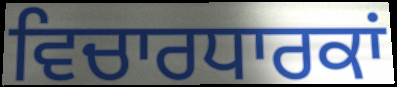
ਵਿਚਾਰਧਾਰਕਾਂ